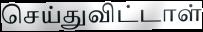
செய்துவிட்டாள்